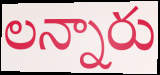
లన్నారు